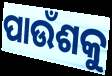
ପାଉଁଶକୁ